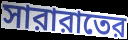
সারারাতের